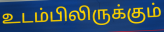
உடம்பிலிருக்கும்